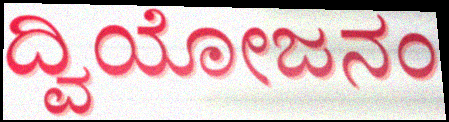
ದ್ವಿಯೋಜನಂ